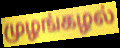
முழங்கழல்